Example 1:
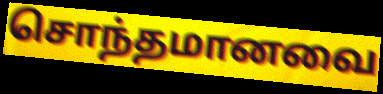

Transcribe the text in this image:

சொந்தமானவை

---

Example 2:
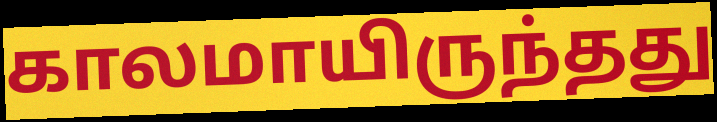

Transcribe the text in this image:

காலமாயிருந்தது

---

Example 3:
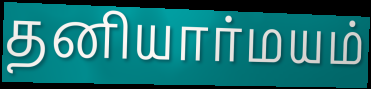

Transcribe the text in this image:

தனியார்மயம்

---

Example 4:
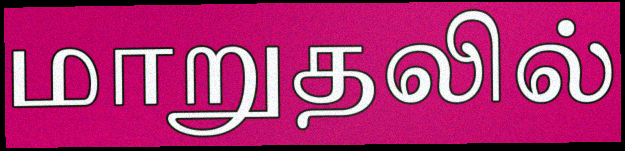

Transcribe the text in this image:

மாறுதலில்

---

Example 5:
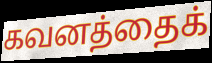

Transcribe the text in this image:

கவனத்தைக்